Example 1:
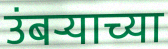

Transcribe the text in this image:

उंबऱ्याच्या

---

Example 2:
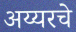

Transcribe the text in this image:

अय्यरचे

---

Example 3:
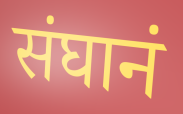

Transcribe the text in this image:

संघानं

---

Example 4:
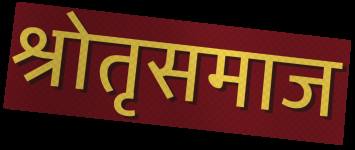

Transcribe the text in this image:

श्रोतृसमाज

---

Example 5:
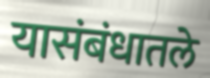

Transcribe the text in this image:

यासंबंधातले